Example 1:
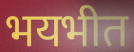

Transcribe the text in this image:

भयभीत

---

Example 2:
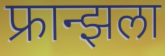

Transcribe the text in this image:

फ्रान्झला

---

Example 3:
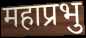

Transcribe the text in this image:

महाप्रभु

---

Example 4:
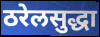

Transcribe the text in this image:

ठरेलसुद्धा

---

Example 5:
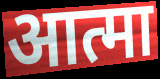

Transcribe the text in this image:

आत्मा